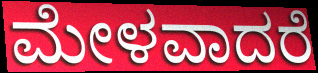
ಮೇಳವಾದರೆ